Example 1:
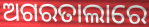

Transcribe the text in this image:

ଅଗରତାଲାରେ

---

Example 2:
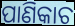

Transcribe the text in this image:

ପାଣିକାଚ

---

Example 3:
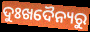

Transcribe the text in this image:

ଦୁଃଖଦୈନ୍ୟରୁ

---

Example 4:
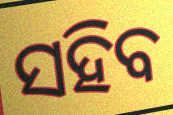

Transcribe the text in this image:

ସହିବ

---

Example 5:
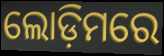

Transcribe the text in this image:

ଲୋଡ଼ିମରେ